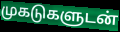
முகடுகளுடன்